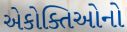
એકોક્તિઓનો